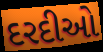
દરદીઓ